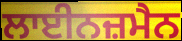
ਲਾਈਨਜ਼ਮੈਨ